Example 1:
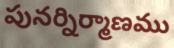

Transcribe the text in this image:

పునర్నిర్మాణము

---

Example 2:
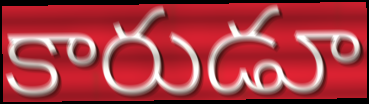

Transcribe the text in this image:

కారుడూ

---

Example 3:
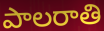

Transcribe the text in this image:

పాలరాతి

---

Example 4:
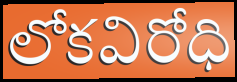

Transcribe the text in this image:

లోకవిరోధి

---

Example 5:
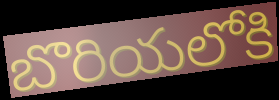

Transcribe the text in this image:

బొరియలోకి